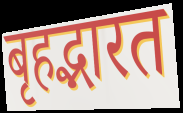
बृहद्भारत